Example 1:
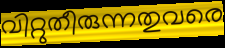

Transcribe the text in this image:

വിറ്റുതീരുന്നതുവരെ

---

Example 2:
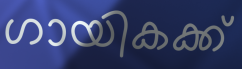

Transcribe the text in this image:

ഗായികക്ക്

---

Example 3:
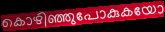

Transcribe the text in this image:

കൊഴിഞ്ഞുപോകുകയോ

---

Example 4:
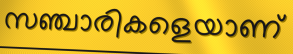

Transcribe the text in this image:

സഞ്ചാരികളെയാണ്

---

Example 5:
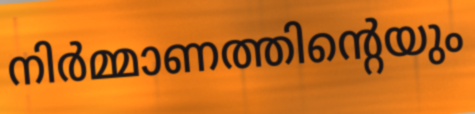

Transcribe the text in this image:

നിർമ്മാണത്തിന്റെയും